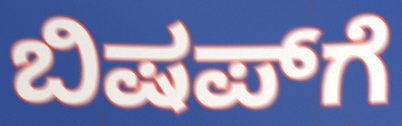
ಬಿಷಪ್‌ಗೆ